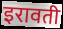
इरावती